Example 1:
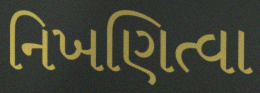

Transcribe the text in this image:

નિખણિત્વા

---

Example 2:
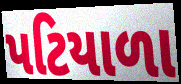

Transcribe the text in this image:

પટિયાળા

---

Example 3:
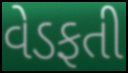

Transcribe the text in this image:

વેડફતી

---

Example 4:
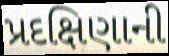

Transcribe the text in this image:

પ્રદક્ષિણાની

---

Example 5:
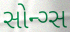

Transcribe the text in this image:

સોન્ગ્સ